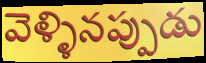
వెళ్ళినప్పుడు